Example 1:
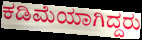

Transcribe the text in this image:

ಕಡಿಮೆಯಾಗಿದ್ದರು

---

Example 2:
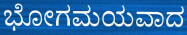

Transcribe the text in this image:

ಭೋಗಮಯವಾದ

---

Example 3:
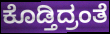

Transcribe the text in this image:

ಕೊಡ್ತಿದ್ರಂತೆ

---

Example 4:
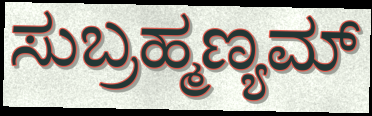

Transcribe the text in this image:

ಸುಬ್ರಹ್ಮಣ್ಯಮ್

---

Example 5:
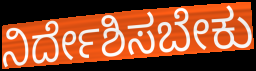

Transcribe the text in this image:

ನಿರ್ದೇಶಿಸಬೇಕು